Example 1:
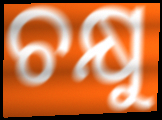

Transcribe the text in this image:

ଚକ୍ଷୁ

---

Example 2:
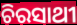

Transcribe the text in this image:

ଚିରସାଥୀ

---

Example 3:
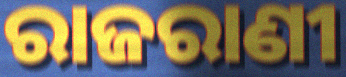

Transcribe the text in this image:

ରାଜରାଣୀ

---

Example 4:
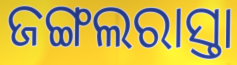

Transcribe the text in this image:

ଜଙ୍ଗଲରାସ୍ତା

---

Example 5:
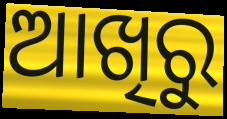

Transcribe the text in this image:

ଆଖିରୁ